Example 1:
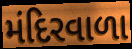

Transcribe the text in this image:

મંદિરવાળા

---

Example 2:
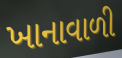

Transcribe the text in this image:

ખાનાવાળી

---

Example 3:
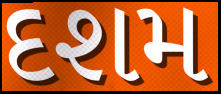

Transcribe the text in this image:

દશમ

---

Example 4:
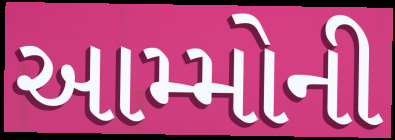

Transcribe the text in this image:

આમ્મોની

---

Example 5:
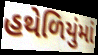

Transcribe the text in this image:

હથેળિયુંમાં